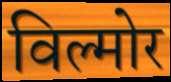
विल्मोर